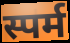
स्पर्म